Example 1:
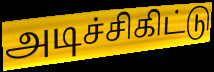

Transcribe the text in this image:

அடிச்சிகிட்டு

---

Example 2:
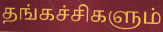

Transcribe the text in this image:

தங்கச்சிகளும்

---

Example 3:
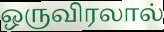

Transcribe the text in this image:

ஒருவிரலால்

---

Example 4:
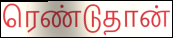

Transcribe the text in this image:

ரெண்டுதான்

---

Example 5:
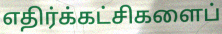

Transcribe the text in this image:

எதிர்க்கட்சிகளைப்